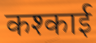
कश्काई